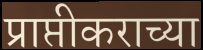
प्राप्तीकराच्या